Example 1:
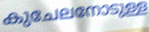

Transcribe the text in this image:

കുചേലനോടുള്ള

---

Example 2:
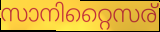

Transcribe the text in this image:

സാനിറ്റൈസര്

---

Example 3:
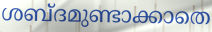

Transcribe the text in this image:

ശബ്ദമുണ്ടാക്കാതെ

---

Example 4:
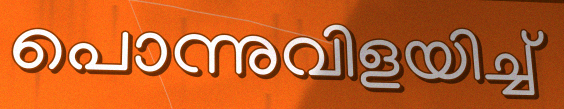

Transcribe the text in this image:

പൊന്നുവിളയിച്ച്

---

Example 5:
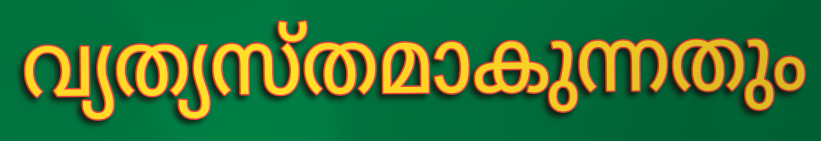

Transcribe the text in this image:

വ്യത്യസ്തമാകുന്നതും